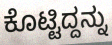
ಕೊಟ್ಟಿದ್ದನ್ನು